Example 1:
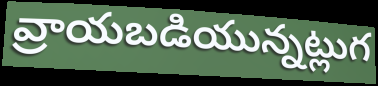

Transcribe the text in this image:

వ్రాయబడియున్నట్లుగ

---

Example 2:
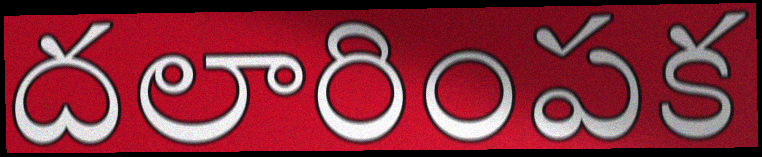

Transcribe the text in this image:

దలారింపక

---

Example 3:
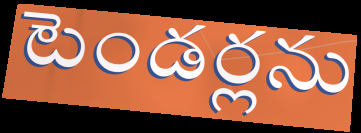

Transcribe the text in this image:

టెండర్లను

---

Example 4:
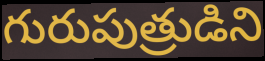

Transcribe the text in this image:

గురుపుత్రుడిని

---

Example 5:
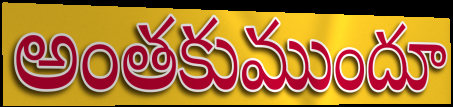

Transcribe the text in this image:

అంతకుముందూ